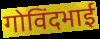
गोविंदभाई